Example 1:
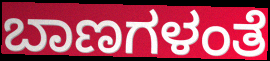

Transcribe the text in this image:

ಬಾಣಗಳಂತೆ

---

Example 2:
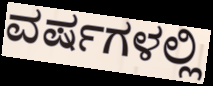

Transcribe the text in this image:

ವರ್ಷಗಳಲ್ಲಿ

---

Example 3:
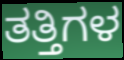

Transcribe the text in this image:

ತತ್ತಿಗಳ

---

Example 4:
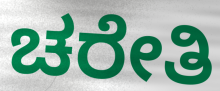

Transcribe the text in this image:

ಚರೇತಿ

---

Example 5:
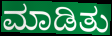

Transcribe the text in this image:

ಮಾಡಿತು